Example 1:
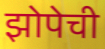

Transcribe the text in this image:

झोपेची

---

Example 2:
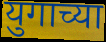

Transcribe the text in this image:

युगाच्या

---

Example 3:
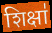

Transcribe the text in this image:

शिक्षा॑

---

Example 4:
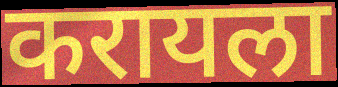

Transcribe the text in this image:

करायला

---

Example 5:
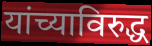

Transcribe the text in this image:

यांच्याविरुद्ध